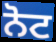
ਨੋਟ